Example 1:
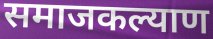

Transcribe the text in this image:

समाजकल्याण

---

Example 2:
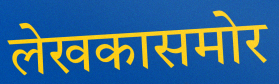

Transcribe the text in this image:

लेखकासमोर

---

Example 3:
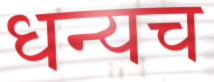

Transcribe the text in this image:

धन्यच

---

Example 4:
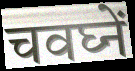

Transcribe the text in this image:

चवघ्नें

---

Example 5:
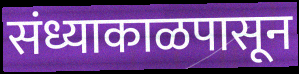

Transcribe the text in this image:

संध्याकाळपासून